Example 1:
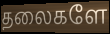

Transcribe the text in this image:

தலைகளே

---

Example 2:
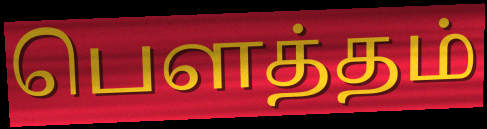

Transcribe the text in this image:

பௌத்தம்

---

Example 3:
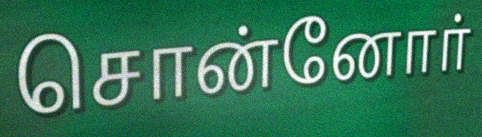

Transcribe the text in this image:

சொன்னோர்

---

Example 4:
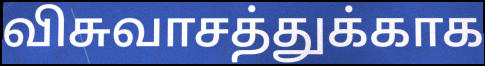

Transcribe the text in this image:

விசுவாசத்துக்காக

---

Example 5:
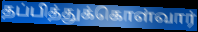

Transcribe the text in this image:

தப்பித்துக்கொள்வார்